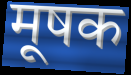
मूषक